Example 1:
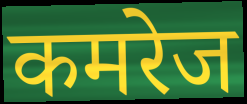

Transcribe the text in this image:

कमरेज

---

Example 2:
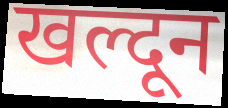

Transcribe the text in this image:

खल्दून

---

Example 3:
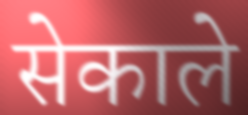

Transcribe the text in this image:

सेकाले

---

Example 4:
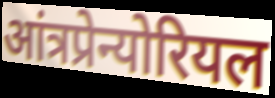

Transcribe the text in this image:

आंत्रप्रेन्योरियल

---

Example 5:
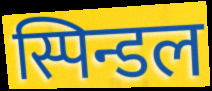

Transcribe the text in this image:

स्पिन्डल